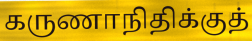
கருணாநிதிக்குத்